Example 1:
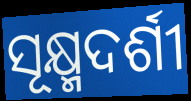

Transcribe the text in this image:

ସୂକ୍ଷ୍ମଦର୍ଶୀ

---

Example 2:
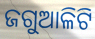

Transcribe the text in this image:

ଜଗୁଆଳିଟି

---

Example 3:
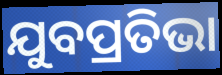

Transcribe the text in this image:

ଯୁବପ୍ରତିଭା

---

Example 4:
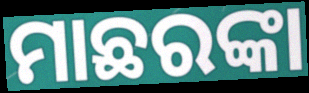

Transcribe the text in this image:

ମାଛରଙ୍କା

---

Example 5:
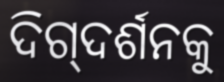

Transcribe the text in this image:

ଦିଗ୍‌ଦର୍ଶନକୁ